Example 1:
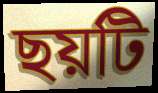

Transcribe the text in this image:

ছয়টি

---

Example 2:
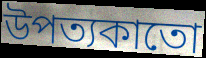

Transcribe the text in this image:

উপত্যকাতো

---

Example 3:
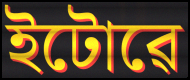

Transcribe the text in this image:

ইটোৱে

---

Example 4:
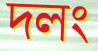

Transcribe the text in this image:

দলং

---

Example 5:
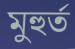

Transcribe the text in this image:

মুহুৰ্ত